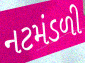
નટમંડળી